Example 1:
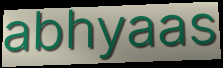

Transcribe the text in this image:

abhyaas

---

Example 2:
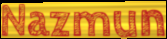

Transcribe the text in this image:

Nazmun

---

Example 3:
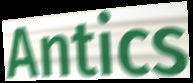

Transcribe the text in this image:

Antics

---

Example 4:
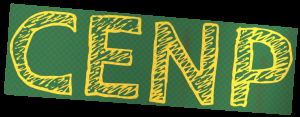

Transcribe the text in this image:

CENP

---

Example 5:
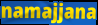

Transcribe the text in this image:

namajjana